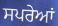
ਸਪਰੇਆਂ